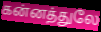
கன்னத்துலே